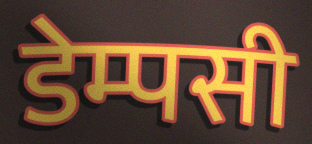
डेम्पसी